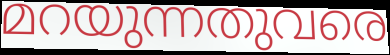
മറയുന്നതുവരെ